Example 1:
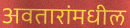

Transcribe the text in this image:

अवतारांमधील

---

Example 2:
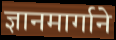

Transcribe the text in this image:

ज्ञानमार्गाने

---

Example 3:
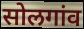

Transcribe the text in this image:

सोलगांव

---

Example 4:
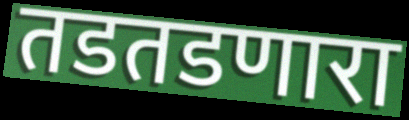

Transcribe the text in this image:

तडतडणारा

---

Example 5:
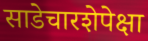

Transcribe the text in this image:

साडेचारशेपेक्षा